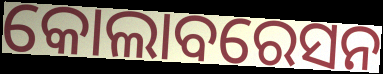
କୋଲାବରେସନ